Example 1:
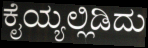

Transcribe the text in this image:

ಕೈಯ್ಯಲ್ಲಿಡಿದು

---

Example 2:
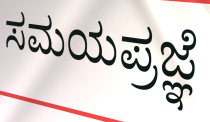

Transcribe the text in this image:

ಸಮಯಪ್ರಜ್ಞೆ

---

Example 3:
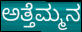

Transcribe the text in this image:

ಅತ್ತೆಮ್ಮನ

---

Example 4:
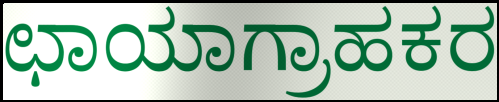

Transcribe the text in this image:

ಛಾಯಾಗ್ರಾಹಕರ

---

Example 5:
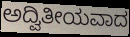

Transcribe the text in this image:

ಅದ್ವಿತೀಯವಾದ